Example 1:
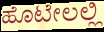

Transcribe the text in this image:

ಹೊಟೇಲಲ್ಲಿ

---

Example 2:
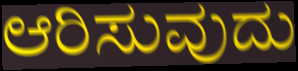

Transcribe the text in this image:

ಆರಿಸುವುದು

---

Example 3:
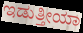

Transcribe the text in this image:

ಇಡುತ್ತೀಯಾ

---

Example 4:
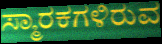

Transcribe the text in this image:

ಸ್ಮಾರಕಗಳಿರುವ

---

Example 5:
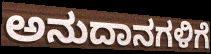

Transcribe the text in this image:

ಅನುದಾನಗಳಿಗೆ